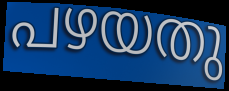
പഴയതു